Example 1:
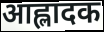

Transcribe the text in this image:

आह्लादक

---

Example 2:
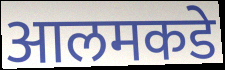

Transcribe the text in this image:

आलमकडे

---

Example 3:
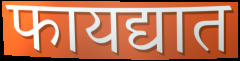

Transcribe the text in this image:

फायद्यात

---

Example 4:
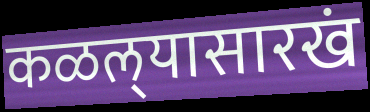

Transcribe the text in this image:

कळल्यासारखं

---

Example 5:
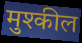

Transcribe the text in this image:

मुश्कील